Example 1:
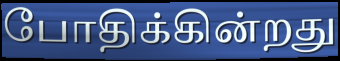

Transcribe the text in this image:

போதிக்கின்றது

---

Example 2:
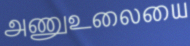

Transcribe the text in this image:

அணுஉலையை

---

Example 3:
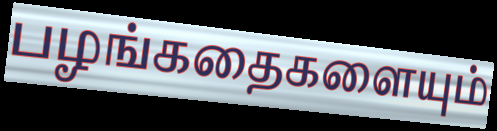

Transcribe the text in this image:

பழங்கதைகளையும்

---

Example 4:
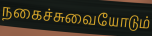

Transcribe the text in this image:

நகைச்சுவையோடும்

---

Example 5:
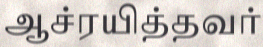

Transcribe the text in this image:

ஆச்ரயித்தவர்